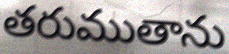
తరుముతాను